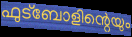
ഫുട്ബോളിന്റെയും